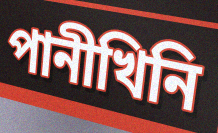
পানীখিনি